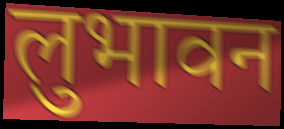
लुभावन